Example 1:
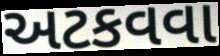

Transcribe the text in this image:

અટકવવા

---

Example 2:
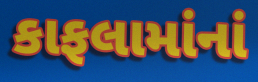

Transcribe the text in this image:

કાફલામાંનાં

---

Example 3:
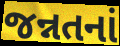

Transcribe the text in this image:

જન્નતનાં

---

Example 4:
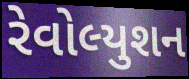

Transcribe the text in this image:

રેવોલ્યુશન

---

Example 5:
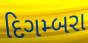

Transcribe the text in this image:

દિગમ્બરા